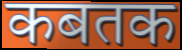
कबतक